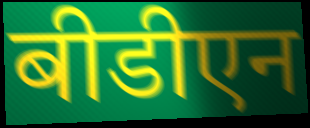
बीडीएन